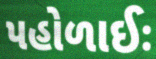
પહોળાઈઃ